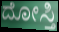
ದೋಸ್ತಿ